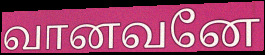
வானவனே